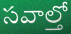
సవాల్తో